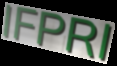
IFPRI